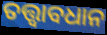
ତତ୍ତ୍ବାବଧାନ